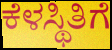
ಕೆಳಸ್ಥಿತಿಗೆ